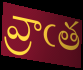
వ్రాఁత